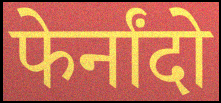
फेर्नांदो